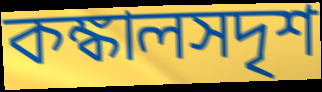
কঙ্কালসদৃশ